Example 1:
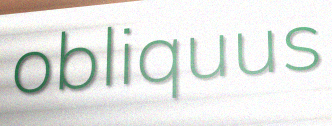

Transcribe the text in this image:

obliquus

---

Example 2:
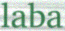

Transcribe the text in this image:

laba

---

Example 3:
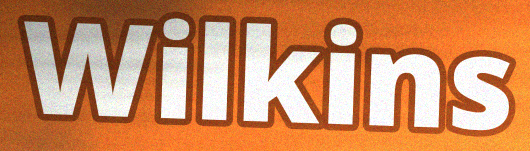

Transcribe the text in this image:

Wilkins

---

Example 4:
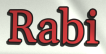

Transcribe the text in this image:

Rabi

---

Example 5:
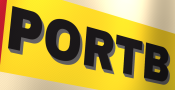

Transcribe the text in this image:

PORTB